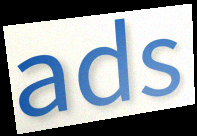
ads